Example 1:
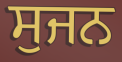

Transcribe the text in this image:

ਸੁਜਨ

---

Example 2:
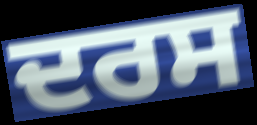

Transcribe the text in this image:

ਦਰਸ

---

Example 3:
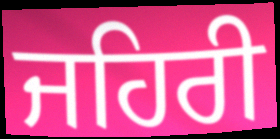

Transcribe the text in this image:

ਜਹਿਰੀ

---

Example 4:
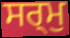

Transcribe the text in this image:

ਸਰ੍ਮੁ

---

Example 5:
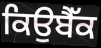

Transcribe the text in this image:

ਕਿਉਬੈੱਕ